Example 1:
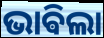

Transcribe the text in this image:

ଭାଵିଲା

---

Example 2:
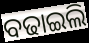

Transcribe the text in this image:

ବଢାଇଲି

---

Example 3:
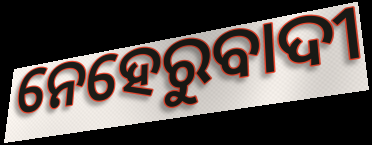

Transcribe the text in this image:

ନେହେରୁବାଦୀ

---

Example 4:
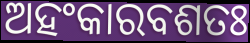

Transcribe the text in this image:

ଅହଂକାରବଶତଃ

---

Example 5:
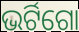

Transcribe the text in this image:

ଭର୍ଟିଗୋ